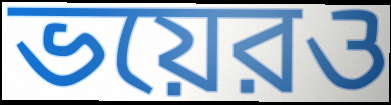
ভয়েরও